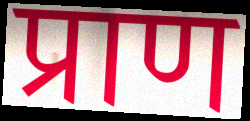
प्राण